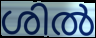
ശിൽ